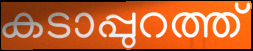
കടാപ്പുറത്ത്